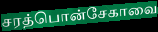
சரத்பொன்சேகாவை